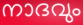
നാദവും